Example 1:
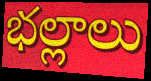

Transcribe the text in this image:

భల్లాలు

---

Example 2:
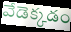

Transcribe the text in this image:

వేడెక్కడం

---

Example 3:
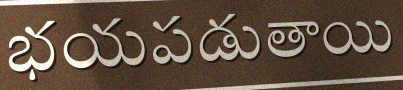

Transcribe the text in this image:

భయపడుతాయి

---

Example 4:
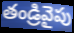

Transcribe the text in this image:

తండ్రివైపు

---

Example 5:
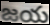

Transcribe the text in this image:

జయ